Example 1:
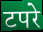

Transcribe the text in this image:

टपरे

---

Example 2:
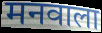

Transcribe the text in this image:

मनवाला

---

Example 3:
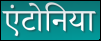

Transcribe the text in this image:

एंटोनिया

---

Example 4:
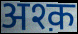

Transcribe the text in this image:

अश्क़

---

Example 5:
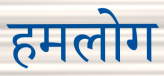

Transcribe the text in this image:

हमलोग